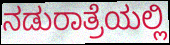
ನಡುರಾತ್ರೆಯಲ್ಲಿ